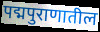
पद्मपुराणातील